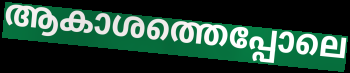
ആകാശത്തെപ്പോലെ